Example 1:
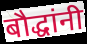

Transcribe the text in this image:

बौद्धांनी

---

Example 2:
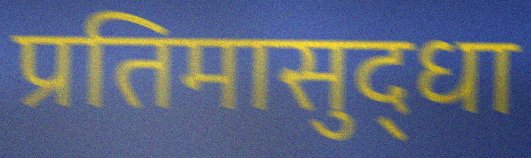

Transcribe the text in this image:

प्रतिमासुद्धा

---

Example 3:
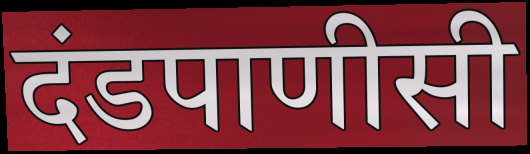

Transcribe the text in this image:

दंडपाणीसी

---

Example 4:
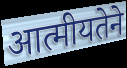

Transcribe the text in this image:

आत्मीयतेने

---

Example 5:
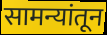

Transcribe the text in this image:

सामन्यांतून